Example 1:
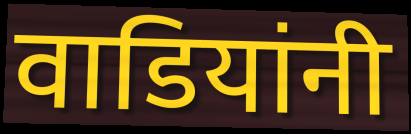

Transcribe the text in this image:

वाडियांनी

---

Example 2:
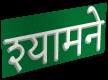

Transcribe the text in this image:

श्यामने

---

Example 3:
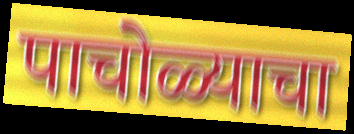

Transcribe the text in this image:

पाचोळ्याचा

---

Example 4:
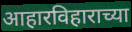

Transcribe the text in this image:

आहारविहाराच्या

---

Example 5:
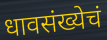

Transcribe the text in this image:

धावसंख्येचं